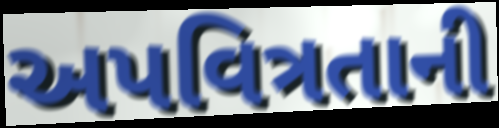
અપવિત્રતાની